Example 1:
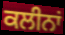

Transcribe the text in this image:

ਕਲੀਨਾਂ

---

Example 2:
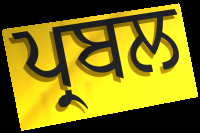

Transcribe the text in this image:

ਪ੍ਰਬਲ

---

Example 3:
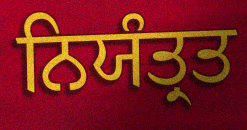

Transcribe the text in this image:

ਨਿਯੰਤ੍ਰਤ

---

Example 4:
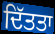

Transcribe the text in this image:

ਦਿੱਤਤਾ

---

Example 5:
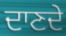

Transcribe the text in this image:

ਦਾਣਦੇ